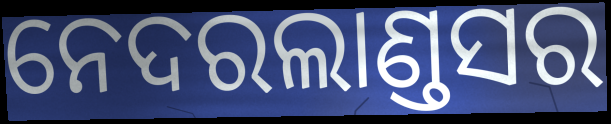
ନେଦରଲାଣ୍ଡସର